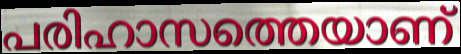
പരിഹാസത്തെയാണ്